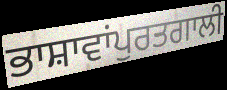
ਭਾਸ਼ਾਵਾਂਪੁਰਤਗਾਲੀ